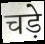
चड़े